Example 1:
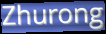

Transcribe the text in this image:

Zhurong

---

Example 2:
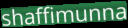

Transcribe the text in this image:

shaffimunna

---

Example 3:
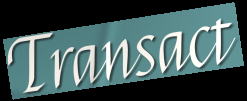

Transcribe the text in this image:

Transact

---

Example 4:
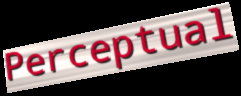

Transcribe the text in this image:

Perceptual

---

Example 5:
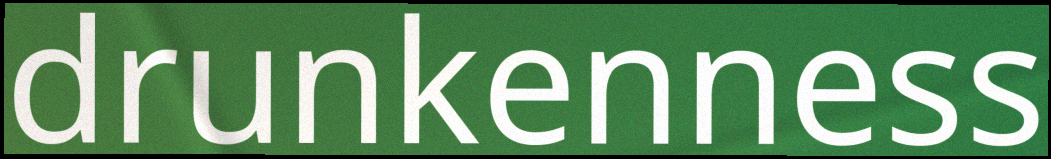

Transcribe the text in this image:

drunkenness